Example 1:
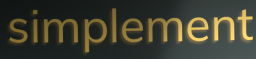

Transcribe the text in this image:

simplement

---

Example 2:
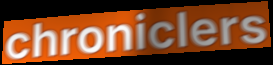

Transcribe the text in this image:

chroniclers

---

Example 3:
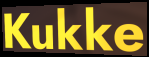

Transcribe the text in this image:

Kukke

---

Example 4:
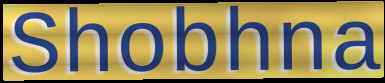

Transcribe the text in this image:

Shobhna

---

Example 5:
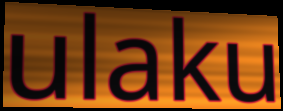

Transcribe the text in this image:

ulaku